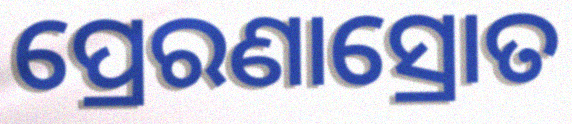
ପ୍ରେରଣାସ୍ରୋତ